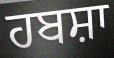
ਹਬਸ਼ਾ